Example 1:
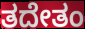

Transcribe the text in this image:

ತದೇತಂ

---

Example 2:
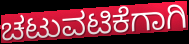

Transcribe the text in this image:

ಚಟುವಟಿಕೆಗಾಗಿ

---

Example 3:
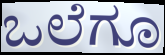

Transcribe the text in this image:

ಒಲೆಗೂ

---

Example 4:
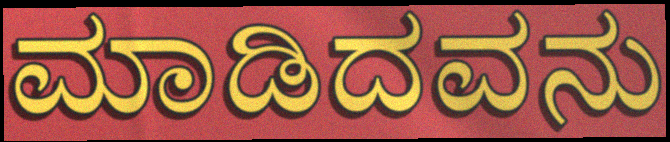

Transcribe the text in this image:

ಮಾಡಿದವನು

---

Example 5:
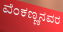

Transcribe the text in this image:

ವೆಂಕಣ್ಣನವರ